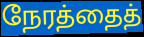
நேரத்தைத்